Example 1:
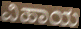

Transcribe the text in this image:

ವಿಹಾಯ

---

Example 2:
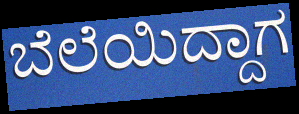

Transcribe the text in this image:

ಬೆಲೆಯಿದ್ದಾಗ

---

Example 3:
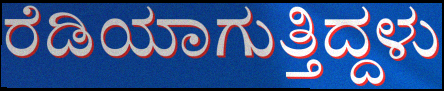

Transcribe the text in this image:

ರೆಡಿಯಾಗುತ್ತಿದ್ದಳು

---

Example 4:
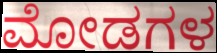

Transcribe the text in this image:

ಮೋಡಗಳ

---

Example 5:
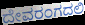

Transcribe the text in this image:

ದೇವರಂಗದಲಿ